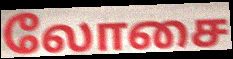
லோசை